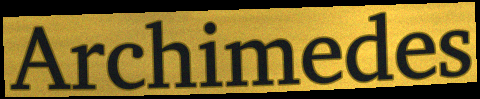
Archimedes